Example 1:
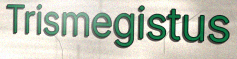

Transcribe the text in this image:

Trismegistus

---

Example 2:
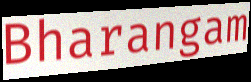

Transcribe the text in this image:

Bharangam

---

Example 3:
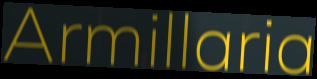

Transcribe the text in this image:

Armillaria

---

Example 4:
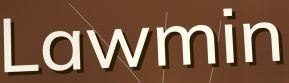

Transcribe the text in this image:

Lawmin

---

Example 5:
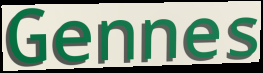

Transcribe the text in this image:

Gennes